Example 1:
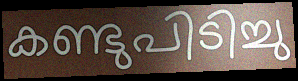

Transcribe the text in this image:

കണ്ടുപിടിച്ചു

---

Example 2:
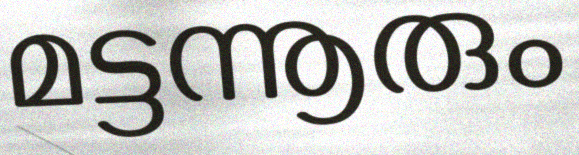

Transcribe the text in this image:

മട്ടന്നൂരും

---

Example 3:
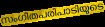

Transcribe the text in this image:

സംഗീതപരിപാടിയുടെ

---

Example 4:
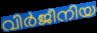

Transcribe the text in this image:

വിർജീനിയ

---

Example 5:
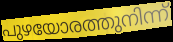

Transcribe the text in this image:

പുഴയോരത്തുനിന്ന്